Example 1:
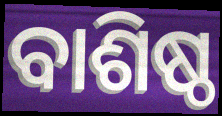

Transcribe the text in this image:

ବାଶିଷ୍ଠ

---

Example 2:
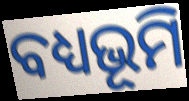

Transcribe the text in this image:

ବଧ୍ୟଭୂମି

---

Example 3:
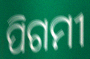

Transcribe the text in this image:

ପିଗମୀ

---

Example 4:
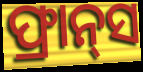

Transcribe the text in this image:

ଫ୍ରାନ୍‌ସ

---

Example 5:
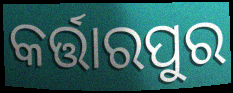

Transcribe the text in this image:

କର୍ତ୍ତାରପୁର